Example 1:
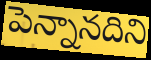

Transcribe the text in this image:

పెన్నానదిని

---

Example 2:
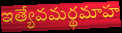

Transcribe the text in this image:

ఇత్యేవమర్థమాహ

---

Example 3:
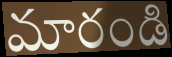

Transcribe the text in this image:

మారండి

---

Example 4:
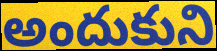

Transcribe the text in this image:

అందుకుని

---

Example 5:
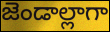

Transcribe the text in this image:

జెండాల్లాగా